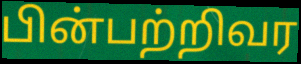
பின்பற்றிவர